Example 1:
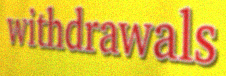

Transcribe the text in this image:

withdrawals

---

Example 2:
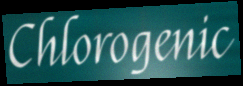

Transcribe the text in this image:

Chlorogenic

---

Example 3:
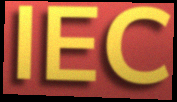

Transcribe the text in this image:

IEC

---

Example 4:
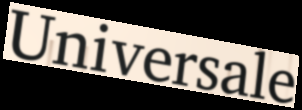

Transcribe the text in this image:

Universale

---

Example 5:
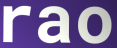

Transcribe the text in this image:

rao